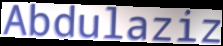
Abdulaziz